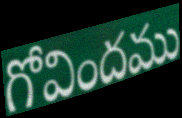
గోవిందము